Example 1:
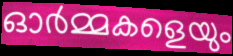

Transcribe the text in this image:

ഓർമ്മകളെയും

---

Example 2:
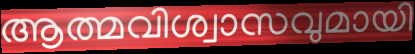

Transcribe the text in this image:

ആത്മവിശ്വാസവുമായി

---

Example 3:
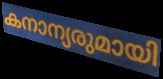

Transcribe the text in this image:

കനാന്യരുമായി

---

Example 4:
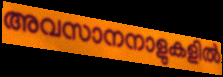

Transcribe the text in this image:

അവസാനനാളുകളിൽ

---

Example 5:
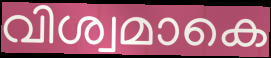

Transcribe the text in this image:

വിശ്വമാകെ